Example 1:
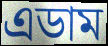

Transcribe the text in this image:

এডাম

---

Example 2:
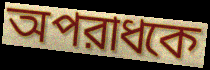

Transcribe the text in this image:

অপরাধকে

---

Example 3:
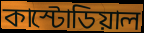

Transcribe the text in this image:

কাস্টোডিয়াল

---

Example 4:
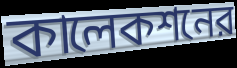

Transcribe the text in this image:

কালেকশনের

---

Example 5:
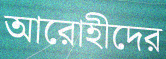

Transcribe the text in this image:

আরোহীদের